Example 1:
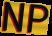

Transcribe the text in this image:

NP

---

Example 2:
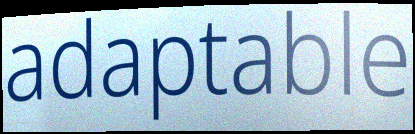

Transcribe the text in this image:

adaptable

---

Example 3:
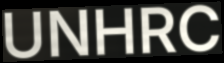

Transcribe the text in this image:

UNHRC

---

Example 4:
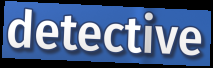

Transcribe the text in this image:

detective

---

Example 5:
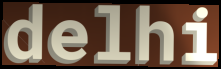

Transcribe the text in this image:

delhi